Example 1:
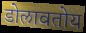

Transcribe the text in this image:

डोलावतोय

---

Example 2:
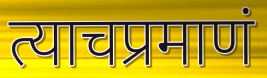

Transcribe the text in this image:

त्याचप्रमाणं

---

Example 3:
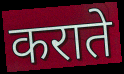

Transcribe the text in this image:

कराते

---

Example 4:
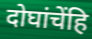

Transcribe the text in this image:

दोघांचेंहि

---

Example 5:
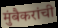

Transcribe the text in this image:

मुंबैकरांची